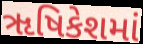
ૠષિકેશમાં